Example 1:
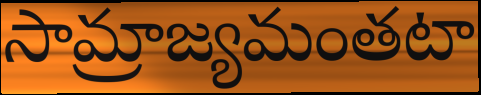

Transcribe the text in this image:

సామ్రాజ్యమంతటా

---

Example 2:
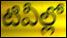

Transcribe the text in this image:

టివీల్లో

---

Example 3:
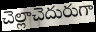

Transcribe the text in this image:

చెల్లాచెదురుగా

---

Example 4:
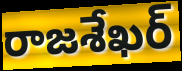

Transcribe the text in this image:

రాజశేఖర్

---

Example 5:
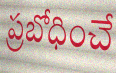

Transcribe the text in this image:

ప్రబోధించే